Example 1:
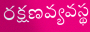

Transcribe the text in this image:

రక్షణవ్యవస్థ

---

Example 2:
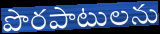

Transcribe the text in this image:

పొరపాటులను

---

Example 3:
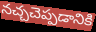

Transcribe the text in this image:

నచ్చచెప్పడానికి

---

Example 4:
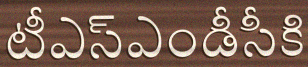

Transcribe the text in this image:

టీఎస్ఎండీసీకి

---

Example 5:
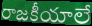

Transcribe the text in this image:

రాజకీయాలే